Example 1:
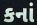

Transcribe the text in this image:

કનાં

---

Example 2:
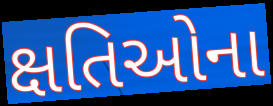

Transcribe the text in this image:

ક્ષતિઓના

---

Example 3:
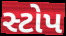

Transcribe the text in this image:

સ્ટોપ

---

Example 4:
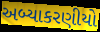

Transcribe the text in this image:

અબ્યાકરણીયો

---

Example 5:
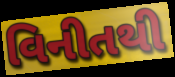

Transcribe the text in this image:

વિનીતથી